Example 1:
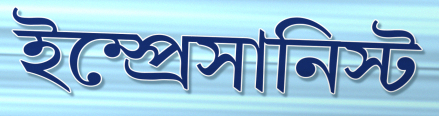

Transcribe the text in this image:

ইম্প্রেসানিস্ট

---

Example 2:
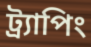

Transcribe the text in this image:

ট্র্যাপিং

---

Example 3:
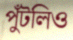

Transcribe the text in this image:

পুঁটলিও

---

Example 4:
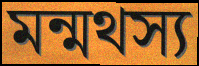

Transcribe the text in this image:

মন্মথস্য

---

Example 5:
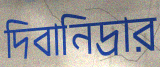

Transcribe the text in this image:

দিবানিদ্রার